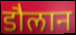
डौलान